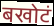
बखोटं